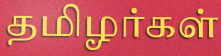
தமிழர்கள்